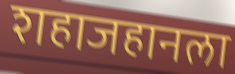
शहाजहानला